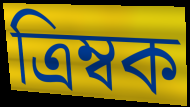
ত্রিম্বক